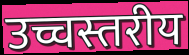
उच्चस्तरीय